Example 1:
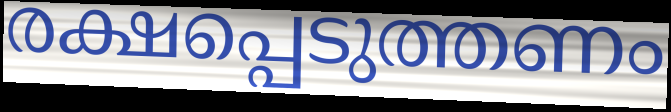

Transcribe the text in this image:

രക്ഷപ്പെടുത്തണം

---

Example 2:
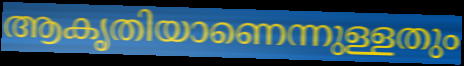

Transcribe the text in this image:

ആകൃതിയാണെന്നുള്ളതും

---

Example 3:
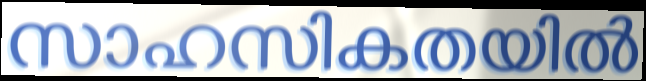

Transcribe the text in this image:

സാഹസികതയിൽ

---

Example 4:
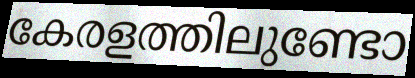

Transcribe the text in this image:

കേരളത്തിലുണ്ടോ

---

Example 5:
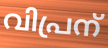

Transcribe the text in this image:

വിപ്രന്